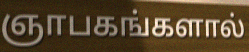
ஞாபகங்களால்